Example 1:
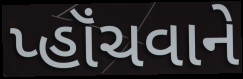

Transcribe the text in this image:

પ્હૉંચવાને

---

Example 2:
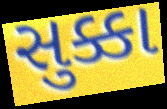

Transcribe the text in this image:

સુક્કા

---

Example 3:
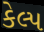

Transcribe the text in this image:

કેલ્પ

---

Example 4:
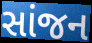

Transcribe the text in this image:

સાંજન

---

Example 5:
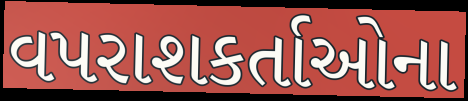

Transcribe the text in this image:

વપરાશકર્તાઓના